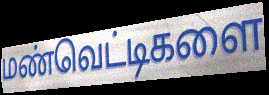
மண்வெட்டிகளை